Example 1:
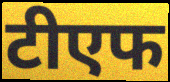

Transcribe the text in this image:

टीएफ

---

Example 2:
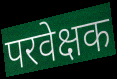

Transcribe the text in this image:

परवेक्षक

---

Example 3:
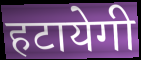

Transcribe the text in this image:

हटायेगी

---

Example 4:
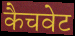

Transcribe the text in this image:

कैचवेट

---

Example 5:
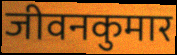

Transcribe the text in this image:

जीवनकुमार